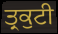
ਤ੍ਰਕੁਟੀ